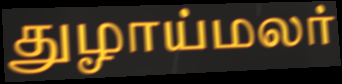
துழாய்மலர்